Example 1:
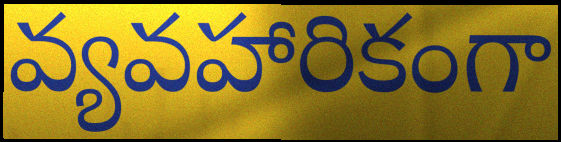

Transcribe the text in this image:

వ్యవహారికంగా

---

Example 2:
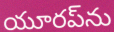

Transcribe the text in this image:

యూరప్‌ను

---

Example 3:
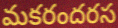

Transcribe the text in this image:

మకరందరస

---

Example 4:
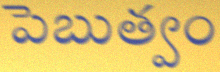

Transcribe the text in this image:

పెబుత్వం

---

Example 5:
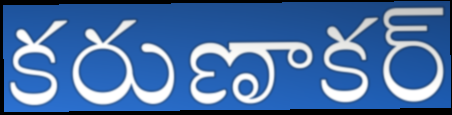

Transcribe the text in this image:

కరుణాకర్